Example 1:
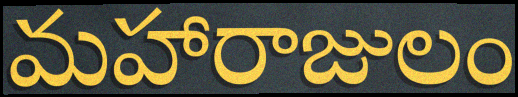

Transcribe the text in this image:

మహారాజులం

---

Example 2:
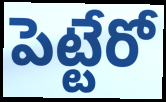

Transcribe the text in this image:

పెట్టేరో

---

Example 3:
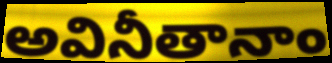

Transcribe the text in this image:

అవినీతానాం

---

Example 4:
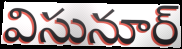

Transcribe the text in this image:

విసునూర్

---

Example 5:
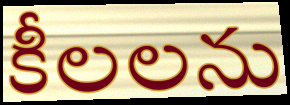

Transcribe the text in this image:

కీలలను